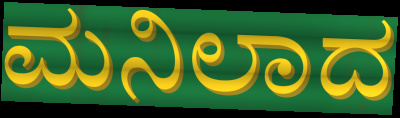
ಮನಿಲಾದ